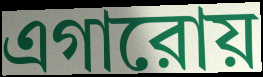
এগারোয়